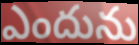
ఎందును